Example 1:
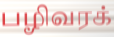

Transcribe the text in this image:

பழிவரக்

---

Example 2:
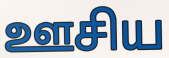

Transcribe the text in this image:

ஊசிய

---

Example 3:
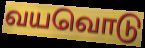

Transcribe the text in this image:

வயவொடு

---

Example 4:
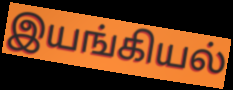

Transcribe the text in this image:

இயங்கியல்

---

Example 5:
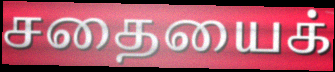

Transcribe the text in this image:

சதையைக்